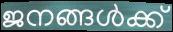
ജനങ്ങൾക്ക്